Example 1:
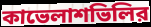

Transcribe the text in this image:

কাভেলাশভিলির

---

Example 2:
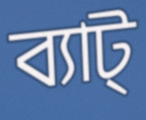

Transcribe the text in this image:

ব্যাট্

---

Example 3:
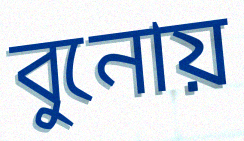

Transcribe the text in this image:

বুনোয়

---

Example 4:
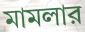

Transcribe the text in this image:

মামলার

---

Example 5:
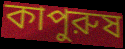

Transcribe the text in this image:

কাপুরুষ